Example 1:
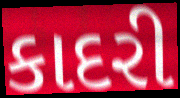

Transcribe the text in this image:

કાદરી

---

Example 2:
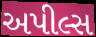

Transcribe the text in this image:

અપીલ્સ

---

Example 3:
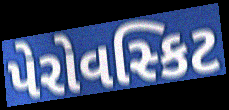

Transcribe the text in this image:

પેરોવસ્કિટ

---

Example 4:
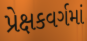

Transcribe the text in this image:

પ્રેક્ષકવર્ગમાં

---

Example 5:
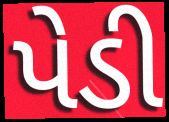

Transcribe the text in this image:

પેડી